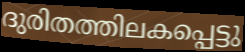
ദുരിതത്തിലകപ്പെട്ടു